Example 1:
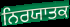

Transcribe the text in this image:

ਨਿਰਯਾਤਕ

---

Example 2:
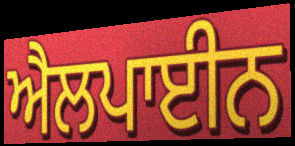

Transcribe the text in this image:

ਐਲਪਾਈਨ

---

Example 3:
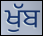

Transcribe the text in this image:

ਖੁੱਬ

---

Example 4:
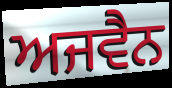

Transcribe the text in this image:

ਅਜਵੈਨ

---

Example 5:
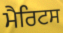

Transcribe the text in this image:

ਮੈਰਿਟਸ